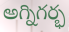
అగ్నిగర్భ